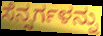
ಸೆನ್ಸರ್ಗಳನ್ನು